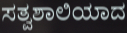
ಸತ್ವಶಾಲಿಯಾದ